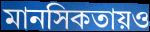
মানসিকতায়ও